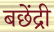
बछेंद्री